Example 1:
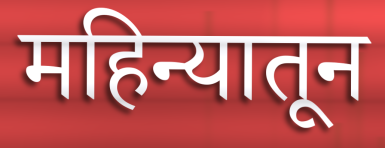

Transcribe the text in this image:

महिन्यातून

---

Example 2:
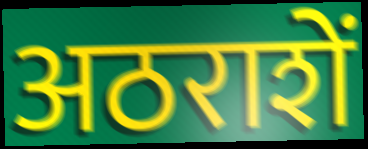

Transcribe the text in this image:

अठराशें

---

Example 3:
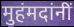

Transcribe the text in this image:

मुहंमदांनीं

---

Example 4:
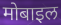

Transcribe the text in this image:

मोबाइल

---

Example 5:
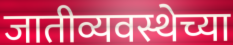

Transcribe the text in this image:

जातीव्यवस्थेच्या